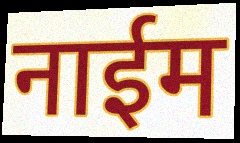
नाईम